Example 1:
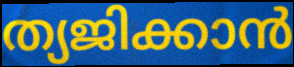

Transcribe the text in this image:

ത്യജിക്കാൻ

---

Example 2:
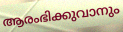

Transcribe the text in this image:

ആരംഭിക്കുവാനും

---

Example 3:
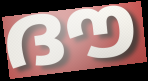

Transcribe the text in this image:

ദൗ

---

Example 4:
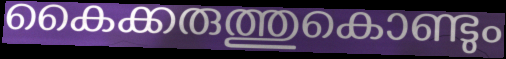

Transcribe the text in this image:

കൈക്കരുത്തുകൊണ്ടും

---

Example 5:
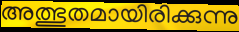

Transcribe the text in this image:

അത്ഭുതമായിരിക്കുന്നു